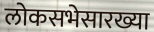
लोकसभेसारख्या